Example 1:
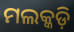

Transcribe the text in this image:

ମଲକ୍କଡ଼ି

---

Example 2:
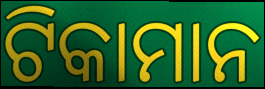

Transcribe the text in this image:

ଟିକାମାନ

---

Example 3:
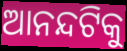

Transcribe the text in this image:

ଆନନ୍ଦଟିକୁ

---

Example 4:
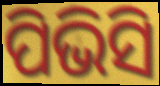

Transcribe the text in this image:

ପିଭିସି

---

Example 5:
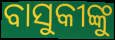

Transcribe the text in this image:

ବାସୁକୀଙ୍କୁ